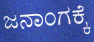
ಜನಾಂಗಕ್ಕೆ